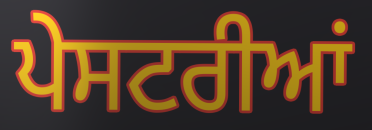
ਪੇਸਟਰੀਆਂ